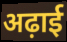
अढ़ाई